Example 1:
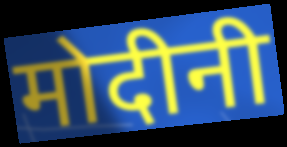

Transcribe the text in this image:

मोदीनी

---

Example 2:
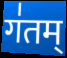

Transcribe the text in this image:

ग॑तम्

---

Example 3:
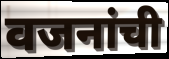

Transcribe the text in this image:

वजनांची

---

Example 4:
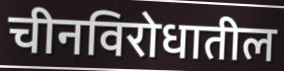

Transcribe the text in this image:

चीनविरोधातील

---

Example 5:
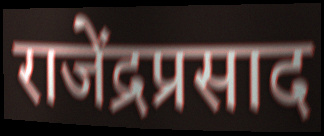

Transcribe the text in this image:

राजेंद्रप्रसाद